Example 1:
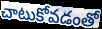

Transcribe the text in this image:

చాటుకోవడంతో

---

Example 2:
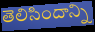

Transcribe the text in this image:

తెలిసిందాన్ని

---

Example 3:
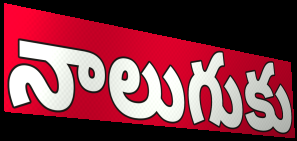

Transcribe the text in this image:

నాలుగుకు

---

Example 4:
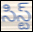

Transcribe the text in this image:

సిస్ట్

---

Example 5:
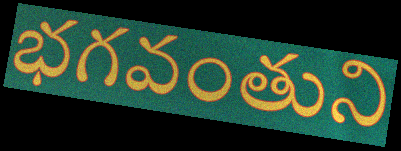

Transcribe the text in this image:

భగవంతుని